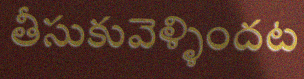
తీసుకువెళ్ళిందట